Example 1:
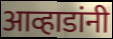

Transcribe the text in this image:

आव्हाडांनी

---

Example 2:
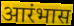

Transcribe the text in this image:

आरंभास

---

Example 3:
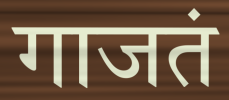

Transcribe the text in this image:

गाजतं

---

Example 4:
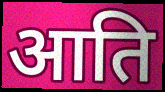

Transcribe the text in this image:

आति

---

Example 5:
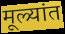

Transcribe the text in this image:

मूल्यांत